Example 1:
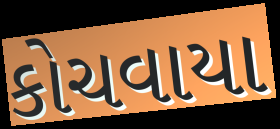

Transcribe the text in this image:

કોચવાયા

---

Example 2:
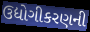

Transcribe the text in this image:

ઉદ્યોગીકરણની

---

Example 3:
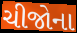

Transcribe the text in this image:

ચીજોના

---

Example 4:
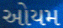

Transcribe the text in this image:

ઓયમ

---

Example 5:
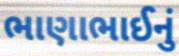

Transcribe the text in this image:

ભાણાભાઈનું